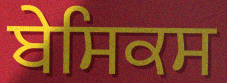
ਬੇਸਿਕਸ